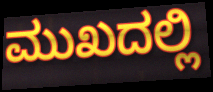
ಮುಖದಲ್ಲಿ